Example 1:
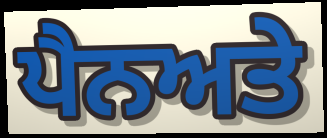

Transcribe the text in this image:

ਪੈਨਅਤੇ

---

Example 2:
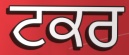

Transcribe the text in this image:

ਟਕਰ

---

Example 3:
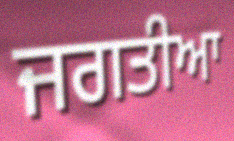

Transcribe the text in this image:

ਜਗਤੀਆ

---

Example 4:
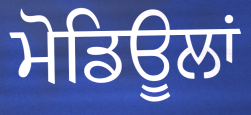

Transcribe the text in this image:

ਮੋਡਿਊਲਾਂ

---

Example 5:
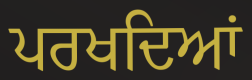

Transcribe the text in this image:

ਪਰਖਦਿਆਂ